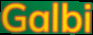
Galbi